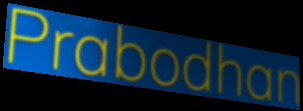
Prabodhan